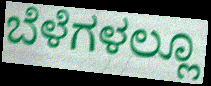
ಬೆಳೆಗಳಲ್ಲೂ